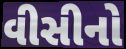
વીસીનો